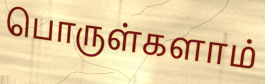
பொருள்களாம்